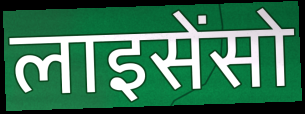
लाइसेंसो